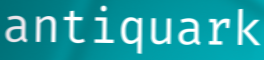
antiquark